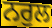
ਨਰੁਲ